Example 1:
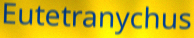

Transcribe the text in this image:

Eutetranychus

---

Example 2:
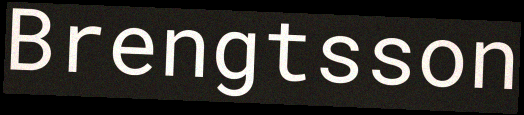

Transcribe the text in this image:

Brengtsson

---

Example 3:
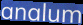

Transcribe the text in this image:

analum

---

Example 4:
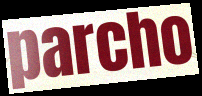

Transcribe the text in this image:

parcho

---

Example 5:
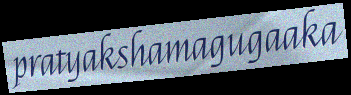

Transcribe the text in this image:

pratyakshamagugaaka